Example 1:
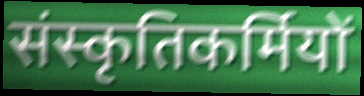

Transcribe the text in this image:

संस्कृतिकर्मियों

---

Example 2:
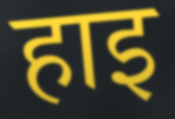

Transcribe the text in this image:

हाइ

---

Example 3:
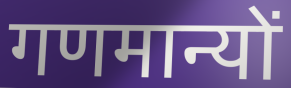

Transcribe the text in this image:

गणमान्यों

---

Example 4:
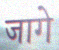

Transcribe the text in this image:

जागे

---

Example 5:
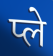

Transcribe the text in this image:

प्ले